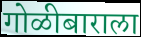
गोळीबाराला